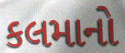
કલમાનો